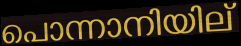
പൊന്നാനിയില്